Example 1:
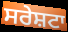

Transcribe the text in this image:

ਸਰੇਸ਼ਟਾ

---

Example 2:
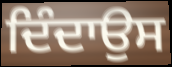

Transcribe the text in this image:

ਦਿੰਦਾਉਸ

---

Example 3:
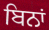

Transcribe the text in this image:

ਬਿਨਾਂ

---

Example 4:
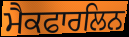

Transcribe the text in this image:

ਮੈਕਫਾਰਲਿਨ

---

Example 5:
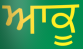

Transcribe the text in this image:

ਆਕੂ